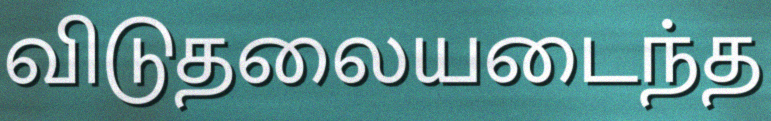
விடுதலையடைந்த